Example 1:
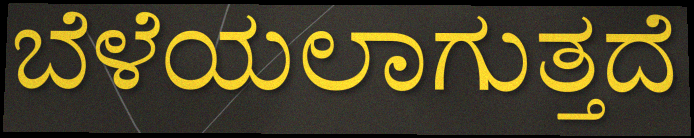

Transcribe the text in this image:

ಬೆಳೆಯಲಾಗುತ್ತದೆ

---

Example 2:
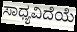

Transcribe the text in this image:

ಸಾಧ್ಯವಿದೆಯೆ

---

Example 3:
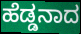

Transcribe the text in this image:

ಹೆಡ್ಡನಾದ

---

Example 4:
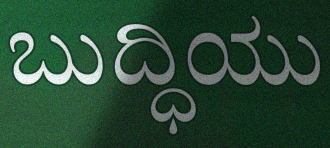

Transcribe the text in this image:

ಬುದ್ಧಿಯು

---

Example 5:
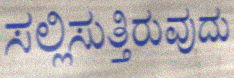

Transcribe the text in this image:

ಸಲ್ಲಿಸುತ್ತಿರುವುದು